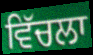
ਵਿੱਚਲਾ